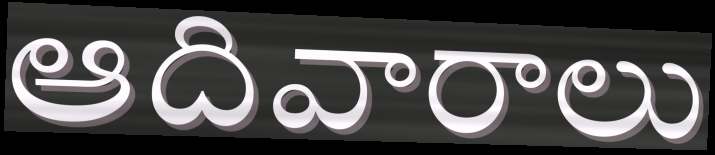
ఆదివారాలు